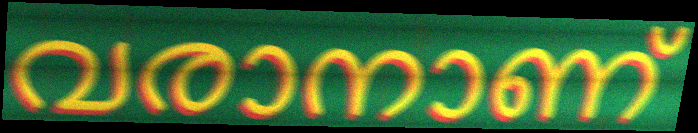
വരാനാണ്